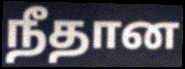
நீதான